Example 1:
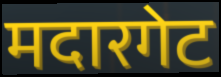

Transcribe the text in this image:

मदारगेट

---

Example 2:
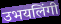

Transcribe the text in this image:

उभयलिंगी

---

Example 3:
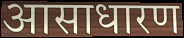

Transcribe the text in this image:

आसाधारण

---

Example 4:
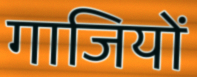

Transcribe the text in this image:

गाजियों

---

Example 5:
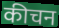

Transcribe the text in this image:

कीचन